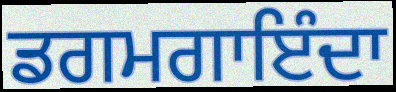
ਡਗਮਗਾਇੰਦਾ